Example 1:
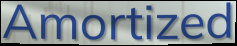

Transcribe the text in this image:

Amortized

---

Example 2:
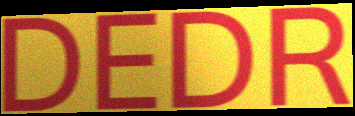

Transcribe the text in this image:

DEDR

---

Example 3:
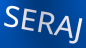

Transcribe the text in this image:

SERAJ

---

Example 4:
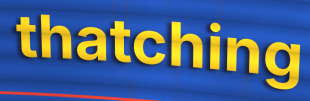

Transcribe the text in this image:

thatching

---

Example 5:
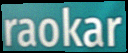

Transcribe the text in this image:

raokar